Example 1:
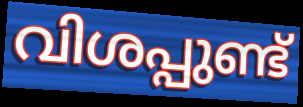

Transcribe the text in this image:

വിശപ്പുണ്ട്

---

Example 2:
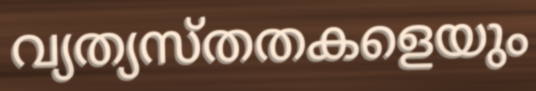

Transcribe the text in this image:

വ്യത്യസ്തതകളെയും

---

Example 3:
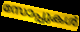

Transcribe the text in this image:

സോപ്പുകൾ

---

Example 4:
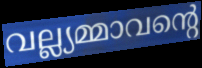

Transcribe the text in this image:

വല്ല്യമ്മാവന്റെ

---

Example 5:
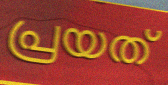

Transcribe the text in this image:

പ്രയത്